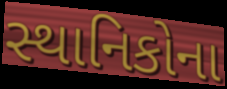
સ્થાનિકોના